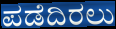
ಪಡೆದಿರಲು